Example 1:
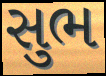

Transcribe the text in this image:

સુભ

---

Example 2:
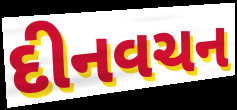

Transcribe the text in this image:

દીનવચન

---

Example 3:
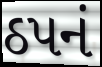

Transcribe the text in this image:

ઠપનં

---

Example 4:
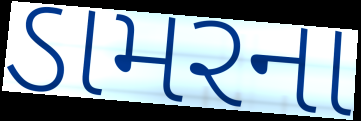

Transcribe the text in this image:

ડામરના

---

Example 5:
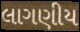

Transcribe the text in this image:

લાગણીય